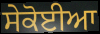
ਸੇਕੋਈਆ